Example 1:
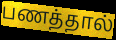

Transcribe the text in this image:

பணத்தால்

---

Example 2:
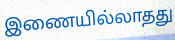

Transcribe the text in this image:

இணையில்லாதது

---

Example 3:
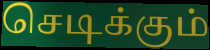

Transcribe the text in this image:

செடிக்கும்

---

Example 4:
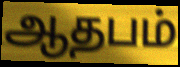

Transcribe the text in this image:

ஆதபம்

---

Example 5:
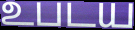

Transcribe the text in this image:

உபடய